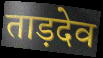
ताड़देव